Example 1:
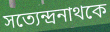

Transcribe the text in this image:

সত্যেন্দ্রনাথকে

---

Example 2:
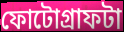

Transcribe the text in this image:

ফোটোগ্রাফটা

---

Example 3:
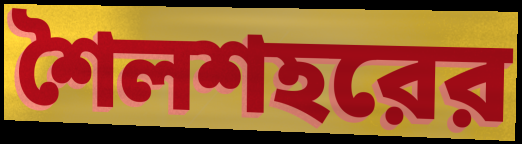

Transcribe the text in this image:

শৈলশহরের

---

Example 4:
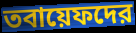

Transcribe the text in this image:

তবায়েফদের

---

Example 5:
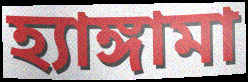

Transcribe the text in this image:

হ্যাঙ্গামা